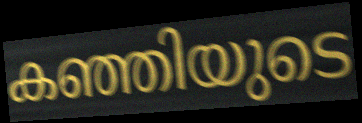
കഞ്ഞിയുടെ